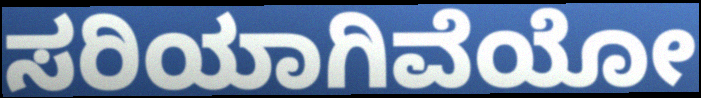
ಸರಿಯಾಗಿವೆಯೋ